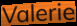
Valerie